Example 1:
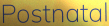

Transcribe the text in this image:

Postnatal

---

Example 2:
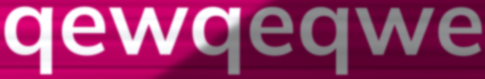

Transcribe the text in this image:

qewqeqwe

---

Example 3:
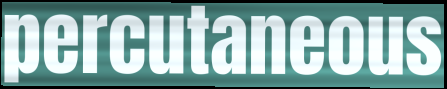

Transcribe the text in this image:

percutaneous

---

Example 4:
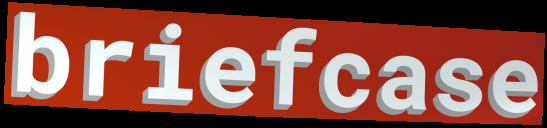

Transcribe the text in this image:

briefcase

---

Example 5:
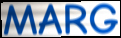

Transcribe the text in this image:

MARG